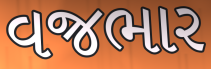
વજ્રભાર